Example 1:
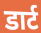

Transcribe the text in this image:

डार्ट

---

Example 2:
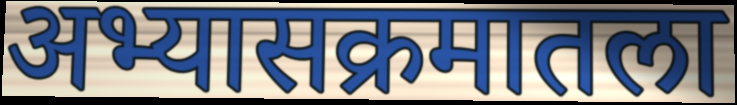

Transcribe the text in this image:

अभ्यासक्रमातला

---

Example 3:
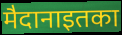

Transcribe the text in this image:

मैदानाइतका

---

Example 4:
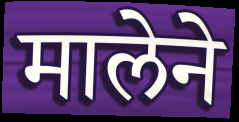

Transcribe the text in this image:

मालेने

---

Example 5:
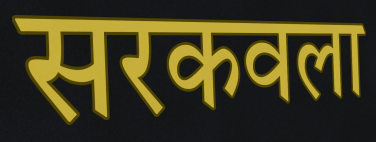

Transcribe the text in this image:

सरकवला